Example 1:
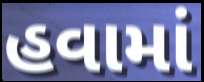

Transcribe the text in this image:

હવામાં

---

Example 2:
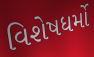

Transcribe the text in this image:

વિશેષધર્મો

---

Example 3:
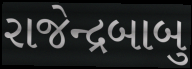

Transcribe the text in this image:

રાજેન્દ્રબાબુ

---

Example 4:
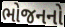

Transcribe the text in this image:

ભોજનનો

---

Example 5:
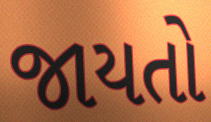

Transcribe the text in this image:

જાયતો